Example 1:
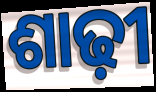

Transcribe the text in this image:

ଶାଢ଼ୀ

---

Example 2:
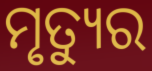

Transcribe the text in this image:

ମୃତ୍ୟୁର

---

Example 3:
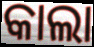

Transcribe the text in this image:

କାଲା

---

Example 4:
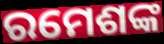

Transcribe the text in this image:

ରମେଶଙ୍କ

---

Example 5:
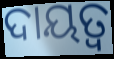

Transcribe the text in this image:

ଦାୟତ୍ବ